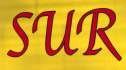
SUR